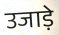
उजाड़े